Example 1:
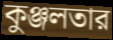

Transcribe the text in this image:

কুঞ্জলতার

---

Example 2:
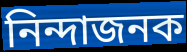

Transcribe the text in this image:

নিন্দাজনক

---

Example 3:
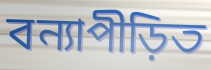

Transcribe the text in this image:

বন্যাপীড়িত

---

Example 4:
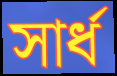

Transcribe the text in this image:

সার্ধ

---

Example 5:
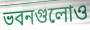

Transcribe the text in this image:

ভবনগুলোও